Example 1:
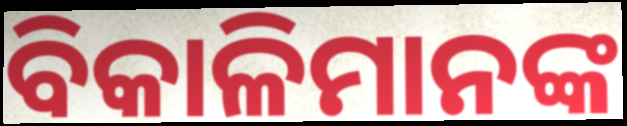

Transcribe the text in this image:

ବିକାଳିମାନଙ୍କ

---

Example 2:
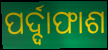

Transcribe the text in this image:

ପର୍ଦ୍ଦାଫାଶ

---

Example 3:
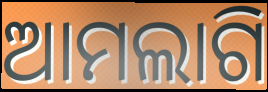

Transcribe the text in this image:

ଆମଲାଗି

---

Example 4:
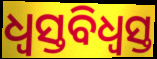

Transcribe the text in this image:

ଧ୍ୱସ୍ତବିଧ୍ୱସ୍ତ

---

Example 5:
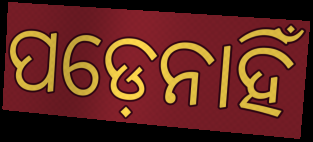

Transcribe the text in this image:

ପଡ଼େନାହିଁ